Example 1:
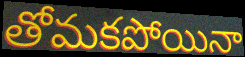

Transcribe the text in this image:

తోమకపోయినా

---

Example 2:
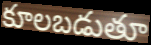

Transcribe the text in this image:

కూలబడుతూ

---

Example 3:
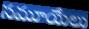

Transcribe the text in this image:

సమూయేలు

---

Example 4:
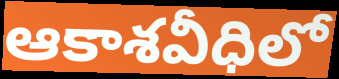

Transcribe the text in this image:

ఆకాశవీధిలో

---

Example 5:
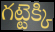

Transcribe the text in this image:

గట్టెక్కి